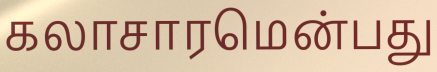
கலாசாரமென்பது